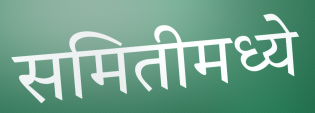
समितीमध्ये